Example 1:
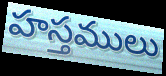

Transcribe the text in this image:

హస్తములు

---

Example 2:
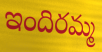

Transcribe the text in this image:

ఇందిరమ్మ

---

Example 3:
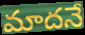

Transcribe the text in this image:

మాదనే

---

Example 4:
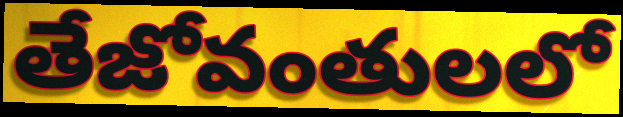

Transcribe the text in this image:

తేజోవంతులలో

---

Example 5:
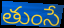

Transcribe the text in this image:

తుంసే